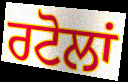
ਰਟੋਲਾਂ